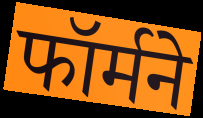
फॉर्मने